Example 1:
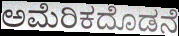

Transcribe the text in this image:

ಅಮೆರಿಕದೊಡನೆ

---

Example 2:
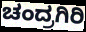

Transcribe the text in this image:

ಚಂದ್ರಗಿರಿ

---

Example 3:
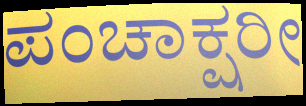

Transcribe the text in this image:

ಪಂಚಾಕ್ಷರೀ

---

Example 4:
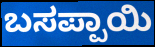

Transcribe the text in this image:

ಬಸಪ್ಪಾಯಿ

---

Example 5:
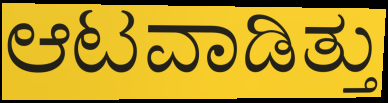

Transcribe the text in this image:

ಆಟವಾಡಿತ್ತು